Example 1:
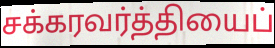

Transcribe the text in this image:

சக்கரவர்த்தியைப்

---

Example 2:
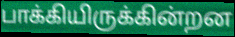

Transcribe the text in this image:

பாக்கியிருக்கின்றன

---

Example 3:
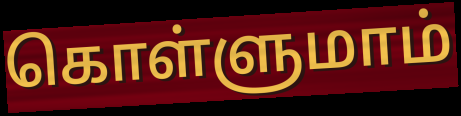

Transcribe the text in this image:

கொள்ளுமாம்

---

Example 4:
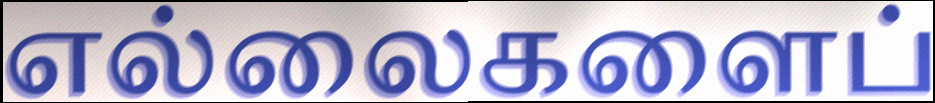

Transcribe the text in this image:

எல்லைகளைப்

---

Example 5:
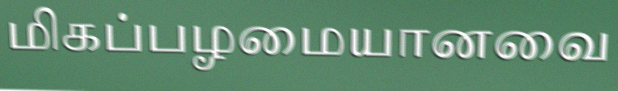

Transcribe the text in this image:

மிகப்பழமையானவை